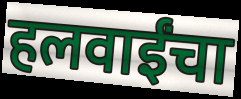
हलवाईंचा